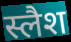
स्लैश